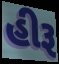
હીરૂ